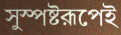
সুস্পষ্টরূপেই